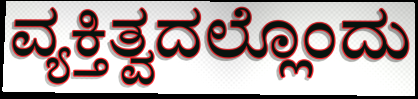
ವ್ಯಕ್ತಿತ್ವದಲ್ಲೊಂದು